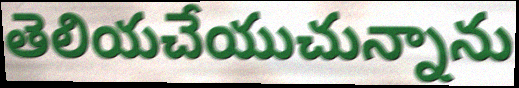
తెలియచేయుచున్నాను